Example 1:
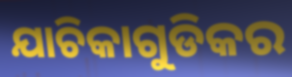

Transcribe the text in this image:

ଯାଚିକାଗୁଡିକର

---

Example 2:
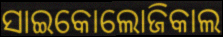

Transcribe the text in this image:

ସାଇକୋଲୋଜିକାଲ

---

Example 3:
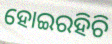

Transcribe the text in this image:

ହୋଇରହିଚି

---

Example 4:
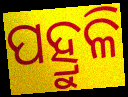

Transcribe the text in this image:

ପହ୍ରୁଳି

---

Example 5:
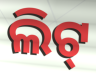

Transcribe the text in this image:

ଲିଟ୍